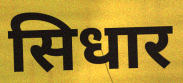
सिधार